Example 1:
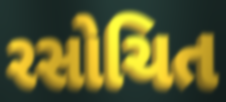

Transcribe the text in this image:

રસોચિત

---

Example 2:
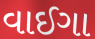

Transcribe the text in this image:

વાઈગા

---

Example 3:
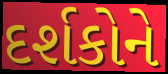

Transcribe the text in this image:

દર્શકોને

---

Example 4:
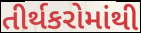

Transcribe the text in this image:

તીર્થકરોમાંથી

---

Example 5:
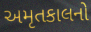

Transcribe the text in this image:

અમૃતકાલનો